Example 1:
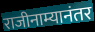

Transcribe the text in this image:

राजीनाम्यानंतर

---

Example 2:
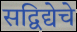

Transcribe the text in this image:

सद्विद्येचे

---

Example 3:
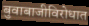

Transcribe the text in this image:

बुवाबाजीविरोधात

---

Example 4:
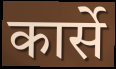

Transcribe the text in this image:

कार्से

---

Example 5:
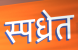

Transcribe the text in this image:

स्पध्रेत